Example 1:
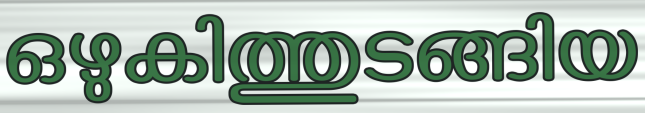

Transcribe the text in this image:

ഒഴുകിത്തുടങ്ങിയ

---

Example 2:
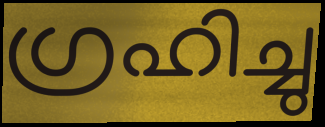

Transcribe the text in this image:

ഗ്രഹിച്ചു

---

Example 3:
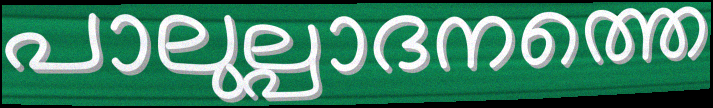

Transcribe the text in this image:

പാലുല്പാദനത്തെ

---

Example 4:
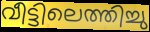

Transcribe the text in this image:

വീട്ടിലെത്തിച്ചു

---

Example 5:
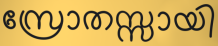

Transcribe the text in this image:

സ്രോതസ്സായി